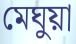
মেঘুয়া